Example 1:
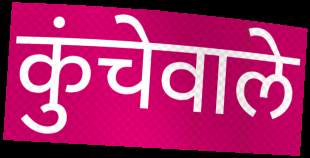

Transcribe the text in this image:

कुंचेवाले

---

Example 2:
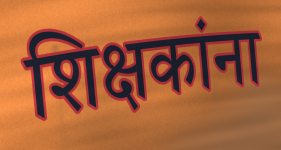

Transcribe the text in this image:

शिक्षकांना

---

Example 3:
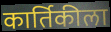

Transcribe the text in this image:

कार्तिकीला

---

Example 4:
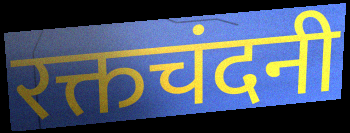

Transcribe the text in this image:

रक्तचंदनी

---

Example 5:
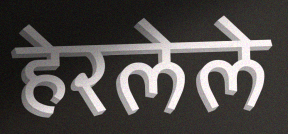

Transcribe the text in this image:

हेरलेले